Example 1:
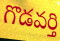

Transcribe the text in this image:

గొడవర్తి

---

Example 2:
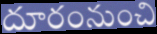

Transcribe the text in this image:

దూరంనుంచి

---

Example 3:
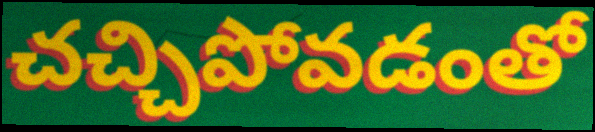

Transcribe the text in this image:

చచ్చిపోవడంతో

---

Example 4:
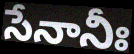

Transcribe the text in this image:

సేనానీః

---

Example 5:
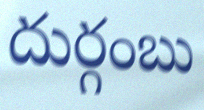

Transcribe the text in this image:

దుర్గంబు